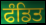
ਫੰਡਿਤ